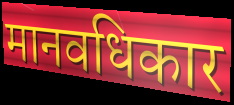
मानवधिकार